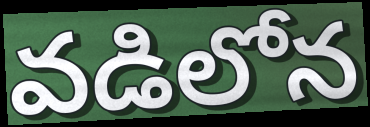
వడిలోన